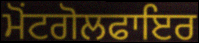
ਮੋਂਟਗੋਲਫਾਇਰ